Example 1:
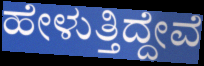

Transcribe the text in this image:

ಹೇಳುತ್ತಿದ್ದೇವೆ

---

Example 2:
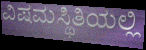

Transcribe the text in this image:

ವಿಷಮಸ್ಥಿತಿಯಲ್ಲಿ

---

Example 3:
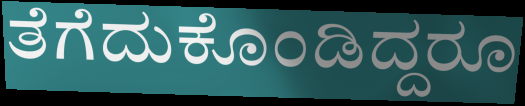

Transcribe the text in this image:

ತೆಗೆದುಕೊಂಡಿದ್ದರೂ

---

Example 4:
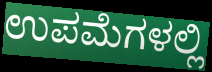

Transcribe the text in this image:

ಉಪಮೆಗಳಲ್ಲಿ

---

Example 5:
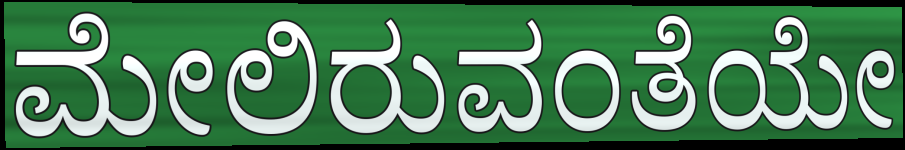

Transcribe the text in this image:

ಮೇಲಿರುವಂತೆಯೇ